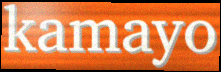
kamayo